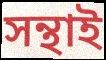
সন্থাই